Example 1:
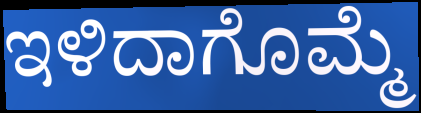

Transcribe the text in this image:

ಇಳಿದಾಗೊಮ್ಮೆ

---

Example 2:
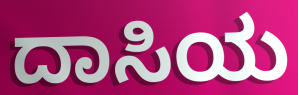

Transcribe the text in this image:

ದಾಸಿಯ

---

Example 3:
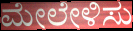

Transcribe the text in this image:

ಮೇಲೇಳಿಸು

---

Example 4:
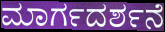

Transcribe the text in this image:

ಮಾರ್ಗದರ್ಶನೆ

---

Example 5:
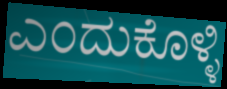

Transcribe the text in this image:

ಎಂದುಕೊಳ್ಳಿ